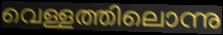
വെള്ളത്തിലൊന്നു